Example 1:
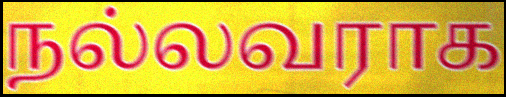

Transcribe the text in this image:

நல்லவராக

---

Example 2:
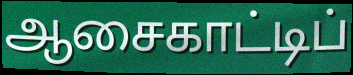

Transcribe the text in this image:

ஆசைகாட்டிப்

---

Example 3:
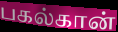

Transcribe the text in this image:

பகல்கான்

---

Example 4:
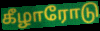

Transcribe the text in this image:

கீழாரோடு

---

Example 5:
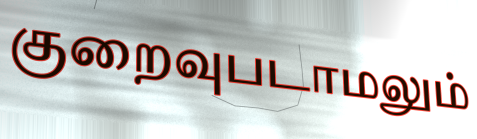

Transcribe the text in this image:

குறைவுபடாமலும்